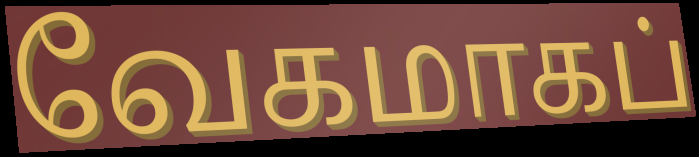
வேகமாகப்